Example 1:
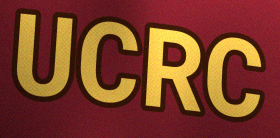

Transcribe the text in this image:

UCRC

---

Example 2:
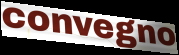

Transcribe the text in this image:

convegno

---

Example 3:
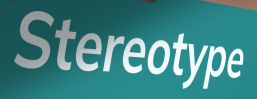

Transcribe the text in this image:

Stereotype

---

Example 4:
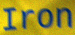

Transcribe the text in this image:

Iron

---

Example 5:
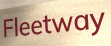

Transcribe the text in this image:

Fleetway